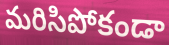
మరిసిపోకండా